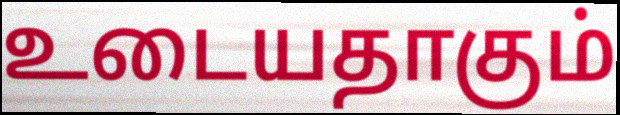
உடையதாகும்